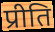
प्रीति